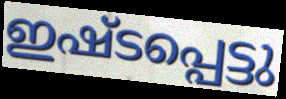
ഇഷ്ടപ്പെട്ടു